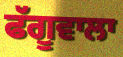
ਫੱਗੂਵਾਲਾ